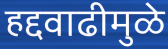
हद्दवाढीमुळे